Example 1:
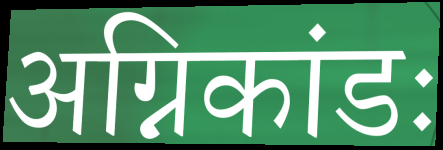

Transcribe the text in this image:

अग्निकांडः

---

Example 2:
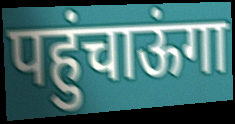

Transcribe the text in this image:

पहुंचाऊंगा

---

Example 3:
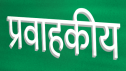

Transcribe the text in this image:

प्रवाहकीय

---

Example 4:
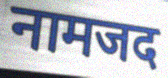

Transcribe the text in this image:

नामजद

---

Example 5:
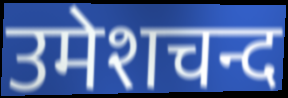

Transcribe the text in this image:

उमेशचन्द